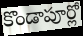
కొండాపూర్లో